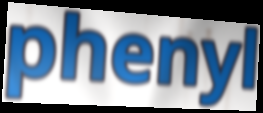
phenyl